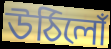
উঠিলোঁ